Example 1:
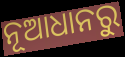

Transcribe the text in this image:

ନୂଆଧାନରୁ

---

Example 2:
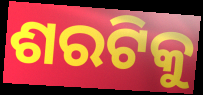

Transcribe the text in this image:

ଶରଟିକୁ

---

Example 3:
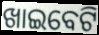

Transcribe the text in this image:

ଖାଇବେଟି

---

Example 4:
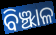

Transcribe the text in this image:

ବିଞ୍ଝାଳ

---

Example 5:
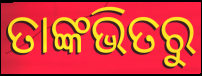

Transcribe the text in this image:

ତାଙ୍କଭିତରୁ